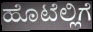
ಹೊಟೆಲ್ಲಿಗೆ